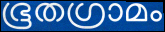
ഭൂതഗ്രാമം